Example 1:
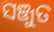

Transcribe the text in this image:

ସଞ୍ଜୁତ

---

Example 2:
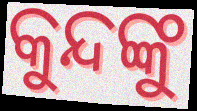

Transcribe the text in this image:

କୁନ୍ଦଙ୍କୁ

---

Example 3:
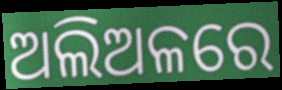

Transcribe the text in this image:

ଅଲିଅଳରେ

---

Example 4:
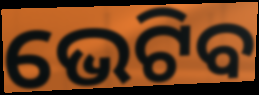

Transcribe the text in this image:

ଭେଟିବ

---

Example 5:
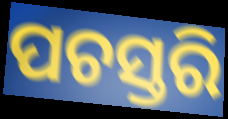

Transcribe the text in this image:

ପଚସ୍ତରି